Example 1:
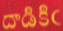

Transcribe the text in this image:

దాడికిఁ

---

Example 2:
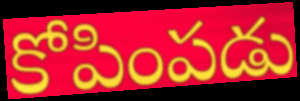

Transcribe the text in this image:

కోపింపడు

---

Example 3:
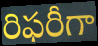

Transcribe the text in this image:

రిఫరీగా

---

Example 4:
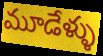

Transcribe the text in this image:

మూడేళ్ళు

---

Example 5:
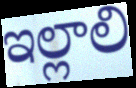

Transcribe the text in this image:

ఇల్లాలి